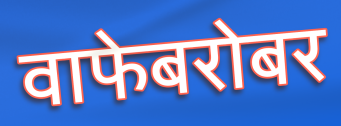
वाफेबरोबर